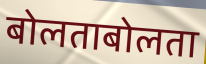
बोलताबोलता